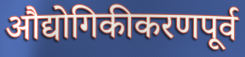
औद्योगिकीकरणपूर्व